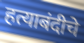
हत्याबंदीचे